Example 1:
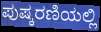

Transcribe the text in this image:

ಪುಷ್ಕರಣಿಯಲ್ಲಿ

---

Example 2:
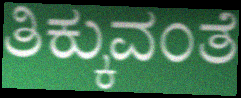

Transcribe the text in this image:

ತಿಕ್ಕುವಂತೆ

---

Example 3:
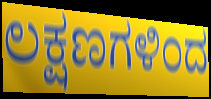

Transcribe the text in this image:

ಲಕ್ಷಣಗಳಿಂದ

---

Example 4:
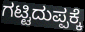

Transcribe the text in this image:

ಗಟ್ಟಿದುಪ್ಪಕ್ಕೆ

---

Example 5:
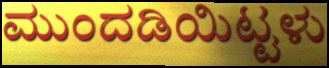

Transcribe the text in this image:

ಮುಂದಡಿಯಿಟ್ಟಳು